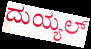
ದುಯ್ಯಲ್